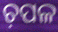
ଚ଼ପଳ